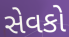
સેવકો